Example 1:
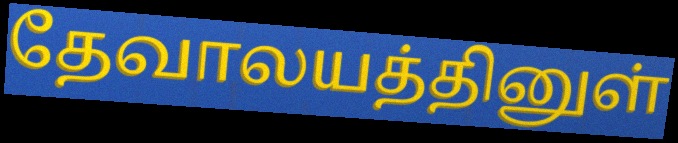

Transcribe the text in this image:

தேவாலயத்தினுள்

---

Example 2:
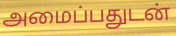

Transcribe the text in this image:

அமைப்பதுடன்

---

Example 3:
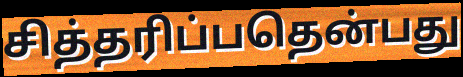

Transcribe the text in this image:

சித்தரிப்பதென்பது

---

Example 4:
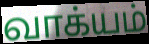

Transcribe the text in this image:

வாக்யம்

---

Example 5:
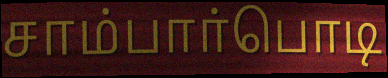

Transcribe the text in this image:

சாம்பார்பொடி